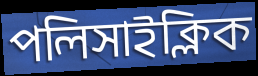
পলিসাইক্লিক